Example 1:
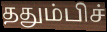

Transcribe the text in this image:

ததும்பிச்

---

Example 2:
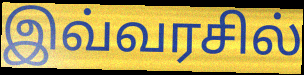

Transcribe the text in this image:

இவ்வரசில்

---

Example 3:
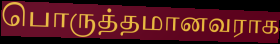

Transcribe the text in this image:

பொருத்தமானவராக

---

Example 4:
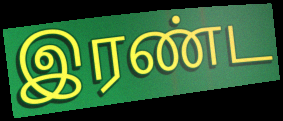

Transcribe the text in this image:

இரண்ட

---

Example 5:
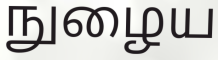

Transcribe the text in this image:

நுழைய